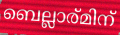
ബെല്ലാര്മിന്